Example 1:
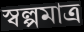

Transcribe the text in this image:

স্বল্পমাত্র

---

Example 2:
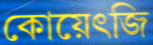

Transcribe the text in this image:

কোয়েৎজি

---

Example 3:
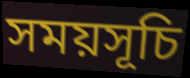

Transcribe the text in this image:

সময়সূচি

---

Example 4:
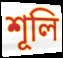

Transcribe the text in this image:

শূলি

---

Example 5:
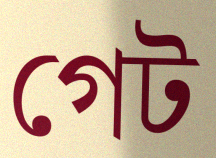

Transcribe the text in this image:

গেট